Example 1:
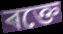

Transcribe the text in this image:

ৰক্তে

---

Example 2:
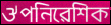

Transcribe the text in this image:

ঔপনিৱেশিক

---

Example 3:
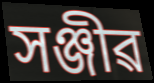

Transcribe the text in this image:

সঞ্জীৱ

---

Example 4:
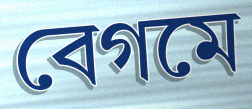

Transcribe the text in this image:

বেগমে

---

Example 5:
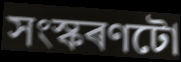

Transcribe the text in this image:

সংস্কৰণটো